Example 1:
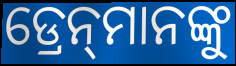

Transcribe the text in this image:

ଡ୍ରେନ୍‌ମାନଙ୍କୁ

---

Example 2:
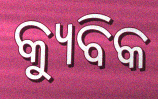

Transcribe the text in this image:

କ୍ୟୁବିକ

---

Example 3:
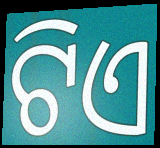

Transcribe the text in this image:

ଟିଏ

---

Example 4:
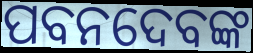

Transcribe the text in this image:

ପବନଦେବଙ୍କ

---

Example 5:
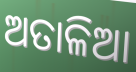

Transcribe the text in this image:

ଅତାଳିଆ